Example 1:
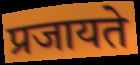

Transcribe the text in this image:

प्रजायते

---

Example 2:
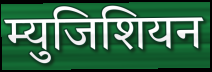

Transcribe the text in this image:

म्‍युजिशियन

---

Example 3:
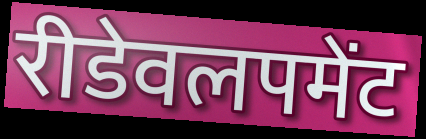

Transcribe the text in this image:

रीडेवलपमेंट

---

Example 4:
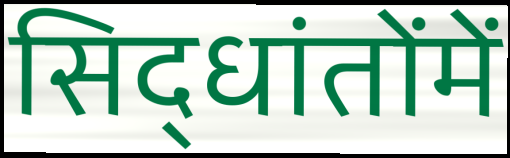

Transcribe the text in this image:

सिद्धांतोंमें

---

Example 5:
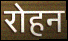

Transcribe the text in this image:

रोहन